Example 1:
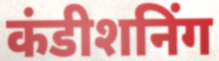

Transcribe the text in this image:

कंडीशनिंग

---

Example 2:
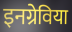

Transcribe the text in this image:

इनग्रेविया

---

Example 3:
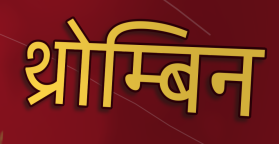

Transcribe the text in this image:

थ्रोम्बिन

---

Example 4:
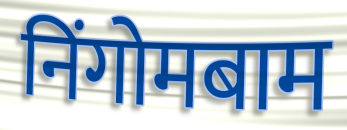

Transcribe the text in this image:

निंगोमबाम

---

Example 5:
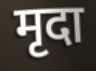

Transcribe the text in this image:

मृदा